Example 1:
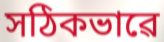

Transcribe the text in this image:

সঠিকভাৱে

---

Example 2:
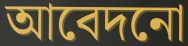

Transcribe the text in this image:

আবেদনো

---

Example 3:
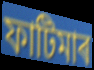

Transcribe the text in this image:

ফাটিমাৰ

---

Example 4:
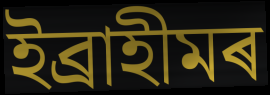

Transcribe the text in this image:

ইব্ৰাহীমৰ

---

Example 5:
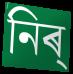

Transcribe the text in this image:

নিৰ্